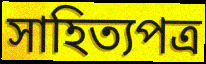
সাহিত্যপত্র